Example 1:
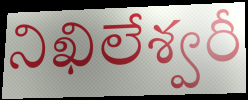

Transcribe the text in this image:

నిఖిలేశ్వరీ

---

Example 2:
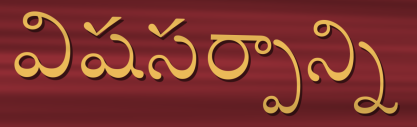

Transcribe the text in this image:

విషసర్పాన్ని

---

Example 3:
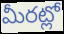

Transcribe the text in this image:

మీరట్లో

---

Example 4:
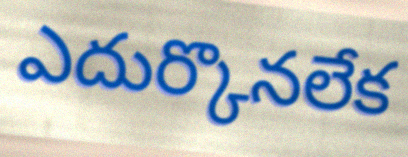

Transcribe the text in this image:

ఎదుర్కొనలేక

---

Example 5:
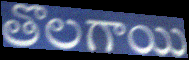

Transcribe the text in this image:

తొలగాయి